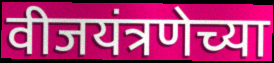
वीजयंत्रणेच्या